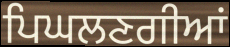
ਪਿਘਲਣਗੀਆਂ